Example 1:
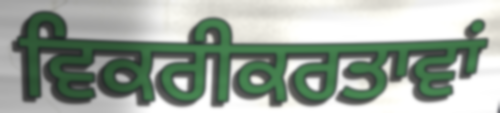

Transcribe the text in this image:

ਵਿਕਰੀਕਰਤਾਵਾਂ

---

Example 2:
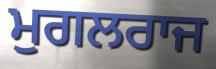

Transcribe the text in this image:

ਮੁਗਲਰਾਜ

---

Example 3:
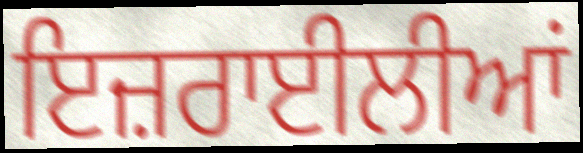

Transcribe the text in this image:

ਇਜ਼ਰਾਈਲੀਆਂ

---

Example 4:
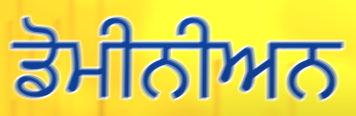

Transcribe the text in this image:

ਡੋਮੀਨੀਅਨ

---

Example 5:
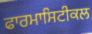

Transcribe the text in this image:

ਫਾਰਮਾਸਿਟੀਕਲ